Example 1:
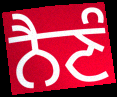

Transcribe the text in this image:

ਨੈਣੰ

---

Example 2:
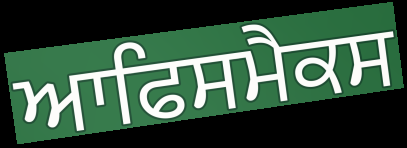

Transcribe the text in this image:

ਆਫਿਸਮੈਕਸ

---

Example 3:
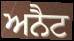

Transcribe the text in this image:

ਅਨੈਟ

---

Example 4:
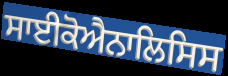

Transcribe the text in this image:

ਸਾਈਕੋਐਨਾਲਿਸਿਸ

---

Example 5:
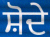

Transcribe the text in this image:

ਸ਼ੋਦੇ